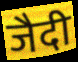
जैदी